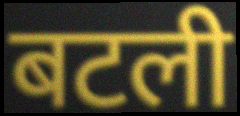
बटली